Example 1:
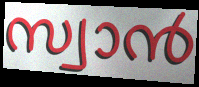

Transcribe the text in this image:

സ്വാൻ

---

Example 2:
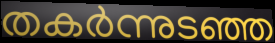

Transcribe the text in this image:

തകർന്നുടഞ്ഞ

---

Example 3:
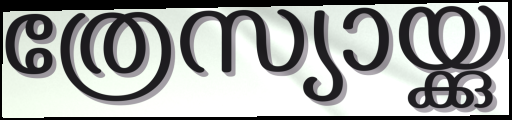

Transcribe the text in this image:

ത്രേസ്യായ്ക്കു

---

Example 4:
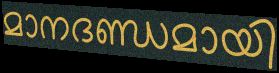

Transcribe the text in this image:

മാനദണ്ഡമായി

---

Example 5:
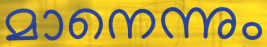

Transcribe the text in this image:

മാനെന്നും